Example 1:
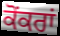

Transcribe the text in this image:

ਕੋਂਕਰਾਂ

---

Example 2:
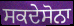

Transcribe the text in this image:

ਸਕਦੇਸੋਨਾ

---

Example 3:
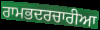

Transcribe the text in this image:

ਰਾਮਭਦਰਚਾਰੀਆ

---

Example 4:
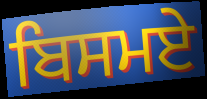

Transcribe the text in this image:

ਬਿਸਮਏ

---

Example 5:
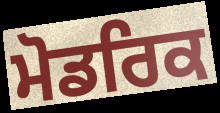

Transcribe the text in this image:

ਮੋਡਰਿਕ